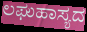
ಲಘುಹಾಸ್ಯದ